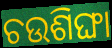
ଚଉଶିଙ୍ଘା